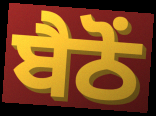
ਬੈਠੋਂ